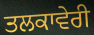
ਤਲਕਾਵੇਰੀ